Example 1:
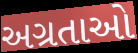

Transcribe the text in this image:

અગ્રતાઓ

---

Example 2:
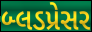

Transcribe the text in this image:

બ્લડપ્રેસર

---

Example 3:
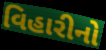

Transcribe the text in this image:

વિહારીનો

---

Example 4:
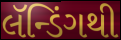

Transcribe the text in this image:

લૅન્ડિંગથી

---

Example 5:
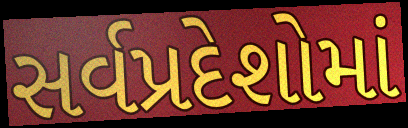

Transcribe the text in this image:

સર્વપ્રદેશોમાં